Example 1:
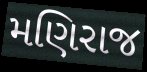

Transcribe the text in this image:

મણિરાજ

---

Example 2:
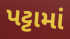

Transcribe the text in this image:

પટ્ટામાં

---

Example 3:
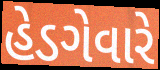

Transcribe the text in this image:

હેડગેવારે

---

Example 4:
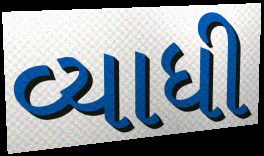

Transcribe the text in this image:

વ્યાધી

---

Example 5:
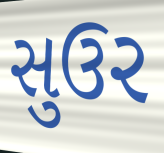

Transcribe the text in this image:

સુઉર